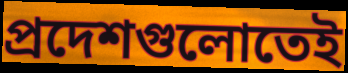
প্রদেশগুলোতেই